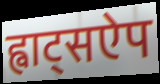
ह्वाट्सऐप